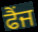
ਫੈਂਜ